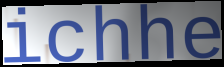
ichhe